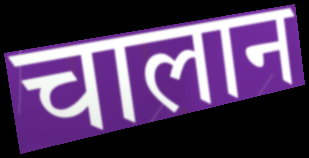
चालान